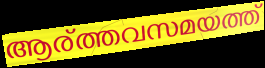
ആര്ത്തവസമയത്ത്